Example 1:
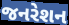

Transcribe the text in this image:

જનરેશન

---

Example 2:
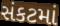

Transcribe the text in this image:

સંકટમાં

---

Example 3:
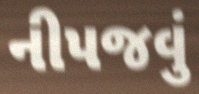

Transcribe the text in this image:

નીપજવું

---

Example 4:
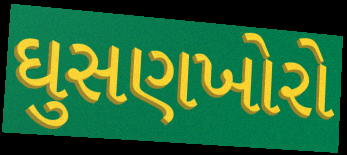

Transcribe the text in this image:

ઘુસણખોરો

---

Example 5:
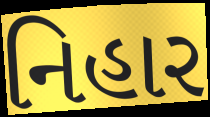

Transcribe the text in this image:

નિહાર